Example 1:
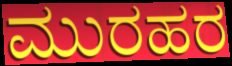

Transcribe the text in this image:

ಮುರಹರ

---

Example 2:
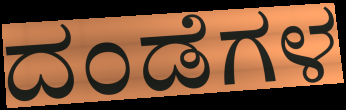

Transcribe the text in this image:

ದಂಡೆಗಳ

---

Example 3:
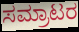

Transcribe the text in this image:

ಸಮ್ರಾಟರ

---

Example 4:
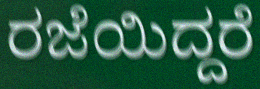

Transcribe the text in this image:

ರಜೆಯಿದ್ದರೆ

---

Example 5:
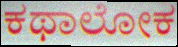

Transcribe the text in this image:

ಕಥಾಲೋಕ